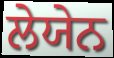
ਲੇਯੇਨ